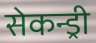
सेकन्ड्री